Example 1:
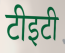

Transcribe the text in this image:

टीइटी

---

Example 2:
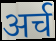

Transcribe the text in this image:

अर्च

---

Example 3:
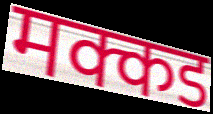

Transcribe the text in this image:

मक्कड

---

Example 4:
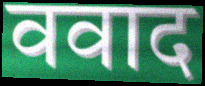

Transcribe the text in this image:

ववाद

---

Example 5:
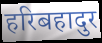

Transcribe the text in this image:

हरिबहादुर